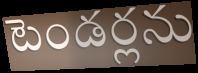
టెండర్లను